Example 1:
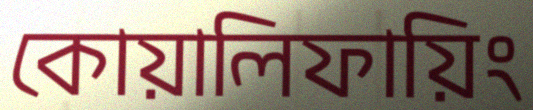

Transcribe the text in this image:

কোয়ালিফায়িং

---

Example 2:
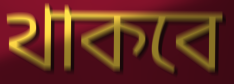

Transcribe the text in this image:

থাকবে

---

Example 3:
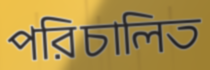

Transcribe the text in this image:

পরিচালিত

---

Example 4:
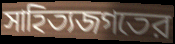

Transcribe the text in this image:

সাহিত্যজগতের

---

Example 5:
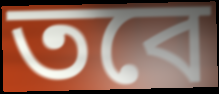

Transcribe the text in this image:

তবে